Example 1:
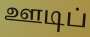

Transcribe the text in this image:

ஊடிப்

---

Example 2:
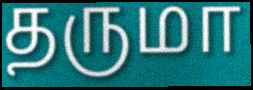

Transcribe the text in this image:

தருமா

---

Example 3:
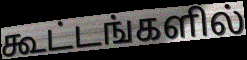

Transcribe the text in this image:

கூட்டங்களில்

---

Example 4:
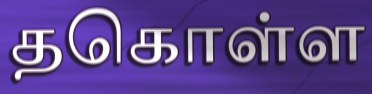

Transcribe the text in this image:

தகொள்ள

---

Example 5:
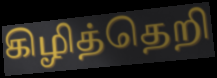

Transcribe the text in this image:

கிழித்தெறி